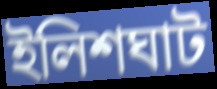
ইলিশঘাট